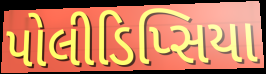
પોલીડિપ્સિયા